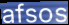
afsos